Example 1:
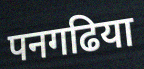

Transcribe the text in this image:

पनगढिया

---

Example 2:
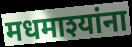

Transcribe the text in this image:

मधमाश्यांना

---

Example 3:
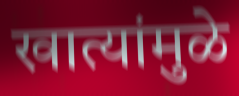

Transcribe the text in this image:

खात्यांमुळे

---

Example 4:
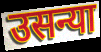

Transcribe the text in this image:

उसन्या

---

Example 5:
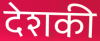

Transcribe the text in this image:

देशकी